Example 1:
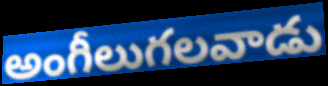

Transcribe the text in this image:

అంగీలుగలవాడు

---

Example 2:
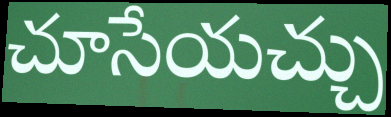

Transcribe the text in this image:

చూసేయచ్చు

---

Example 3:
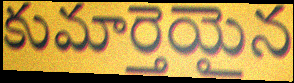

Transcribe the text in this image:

కుమార్తెయైన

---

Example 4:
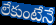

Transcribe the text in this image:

లేకుంటేనే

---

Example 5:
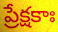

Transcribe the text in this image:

ప్రేక్షకాః